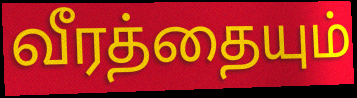
வீரத்தையும்